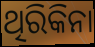
ଥିରିକିନା